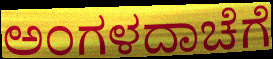
ಅಂಗಳದಾಚೆಗೆ